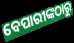
ବେପାରୀଙ୍କଠାରୁ